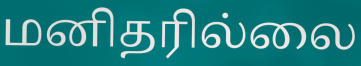
மனிதரில்லை